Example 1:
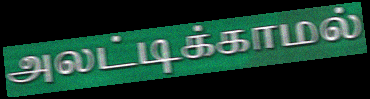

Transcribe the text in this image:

அலட்டிக்காமல்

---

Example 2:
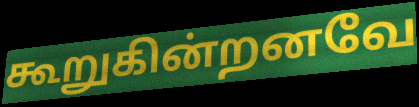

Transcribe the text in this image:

கூறுகின்றனவே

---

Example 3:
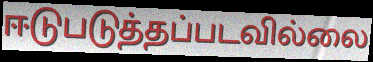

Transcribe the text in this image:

ஈடுபடுத்தப்படவில்லை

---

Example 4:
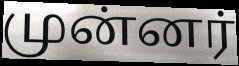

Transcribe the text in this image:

முன்னர்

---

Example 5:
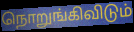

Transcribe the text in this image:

நொறுங்கிவிடும்